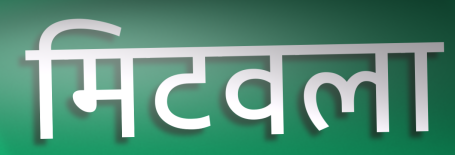
मिटवला